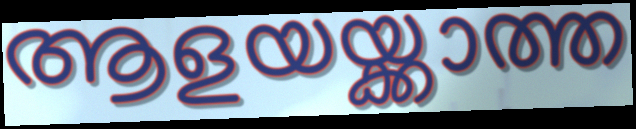
ആളയയ്ക്കാത്ത